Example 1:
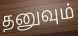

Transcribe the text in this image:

தனுவும்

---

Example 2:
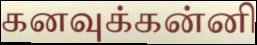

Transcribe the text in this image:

கனவுக்கன்னி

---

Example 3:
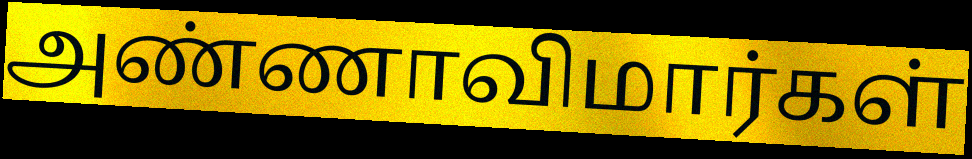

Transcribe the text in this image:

அண்ணாவிமார்கள்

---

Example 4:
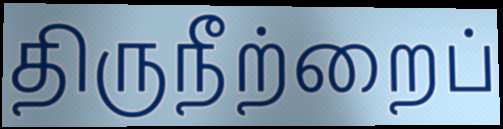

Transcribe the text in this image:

திருநீற்றைப்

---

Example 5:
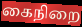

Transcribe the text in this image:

கைநிறை